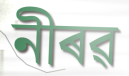
নীৰৱ